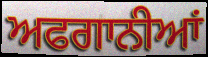
ਅਫਗਾਨੀਆਂ